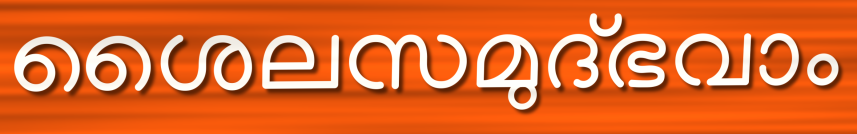
ശൈലസമുദ്ഭവാം